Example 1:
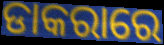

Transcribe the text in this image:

ଡାକରାରେ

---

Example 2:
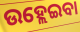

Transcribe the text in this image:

ଉହ୍ଲେଇବା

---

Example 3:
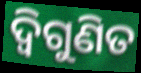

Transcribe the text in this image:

ଦ୍ୱିଗୁଣିତ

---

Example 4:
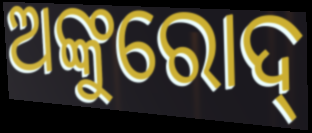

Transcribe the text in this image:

ଅଙ୍କୁରୋଦ୍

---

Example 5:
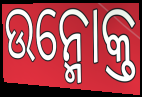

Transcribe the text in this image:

ଉନ୍ମୋକ୍ତ